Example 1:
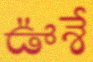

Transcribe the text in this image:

ఊశే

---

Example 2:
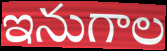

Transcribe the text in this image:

ఇనుగాల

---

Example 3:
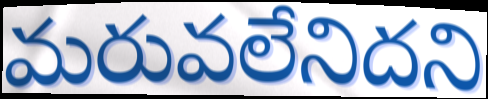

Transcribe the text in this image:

మరువలేనిదని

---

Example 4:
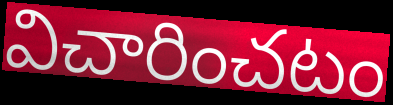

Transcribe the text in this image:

విచారించటం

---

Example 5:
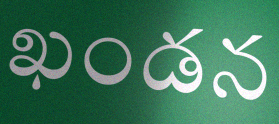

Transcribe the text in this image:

ఖండన